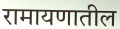
रामायणातील